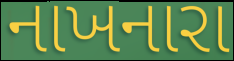
નાખનારા